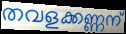
തവളക്കണ്ണന്